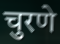
चुरणे